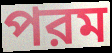
পরম